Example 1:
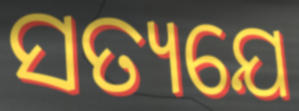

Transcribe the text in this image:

ସତ୍ୟଯେ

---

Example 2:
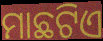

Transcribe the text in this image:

ମାଛଟିଏ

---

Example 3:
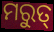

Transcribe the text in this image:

ମରୁତ୍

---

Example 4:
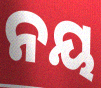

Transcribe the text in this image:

ନୟ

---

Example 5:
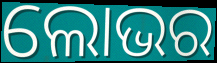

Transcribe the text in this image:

ଲୋଭର